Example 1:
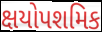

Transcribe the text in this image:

ક્ષયોપશમિક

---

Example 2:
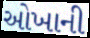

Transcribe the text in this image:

ઓખાની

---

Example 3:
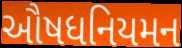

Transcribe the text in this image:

ઔષધનિયમન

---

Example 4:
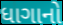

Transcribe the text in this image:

ધાગાનો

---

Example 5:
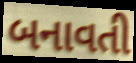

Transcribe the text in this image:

બનાવતી